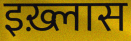
इख़्लास